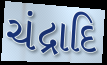
ચંદ્રાદિ